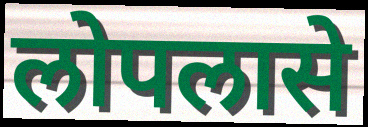
लोपलासे